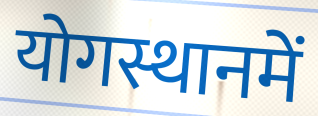
योगस्थानमें